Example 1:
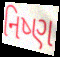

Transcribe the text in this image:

નિષ્ણ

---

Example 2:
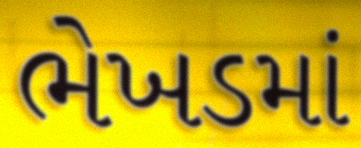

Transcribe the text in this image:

ભેખડમાં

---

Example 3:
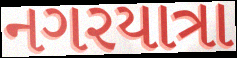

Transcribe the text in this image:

નગરયાત્રા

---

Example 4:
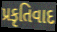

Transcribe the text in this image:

પ્રકૃતિવાદ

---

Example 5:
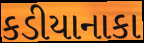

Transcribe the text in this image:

કડીયાનાકા